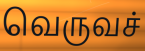
வெருவச்